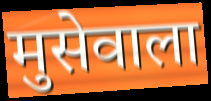
मुसेवाला